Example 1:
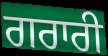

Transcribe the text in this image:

ਗਰਾਰੀ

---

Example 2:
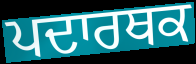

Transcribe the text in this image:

ਪਦਾਰਥਕ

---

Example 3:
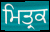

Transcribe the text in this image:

ਮਿਤ੍ਰਕ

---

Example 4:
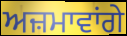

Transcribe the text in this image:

ਅਜ਼ਮਾਵਾਂਗੇ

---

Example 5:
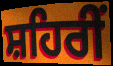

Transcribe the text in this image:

ਸ਼ਹਿਰੀਂ